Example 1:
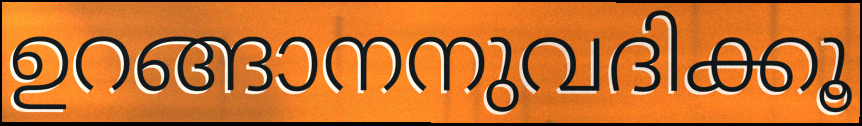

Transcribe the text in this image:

ഉറങ്ങാനനുവദിക്കൂ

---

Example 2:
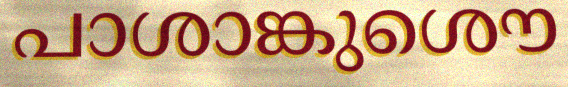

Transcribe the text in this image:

പാശാങ്കുശൌ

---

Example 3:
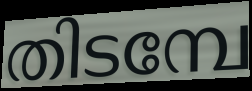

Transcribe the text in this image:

തിടമ്പേ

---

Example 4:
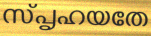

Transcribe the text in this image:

സ്പൃഹയതേ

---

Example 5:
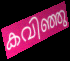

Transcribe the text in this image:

കവിഞ്ഞു